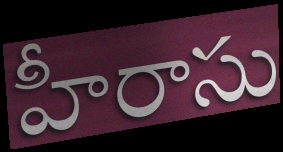
హీరాసు